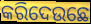
କରିଦେଉଛେ